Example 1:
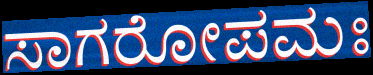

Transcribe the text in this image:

ಸಾಗರೋಪಮಃ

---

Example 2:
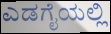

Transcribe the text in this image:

ಎಡಗೈಯಲ್ಲಿ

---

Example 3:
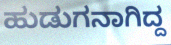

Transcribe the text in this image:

ಹುಡುಗನಾಗಿದ್ದ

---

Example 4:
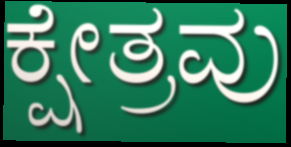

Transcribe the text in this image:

ಕ್ಷೇತ್ರವು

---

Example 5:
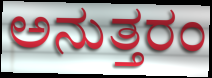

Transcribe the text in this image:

ಅನುತ್ತರಂ